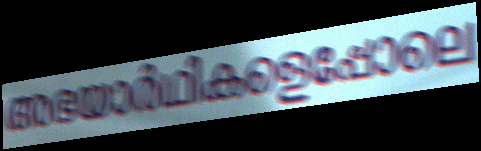
അഭയാർഥികളെപ്പോലെ